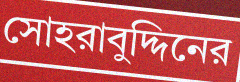
সোহরাবুদ্দিনের